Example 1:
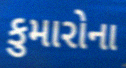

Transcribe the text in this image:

કુમારોના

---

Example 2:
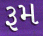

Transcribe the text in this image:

રૂમ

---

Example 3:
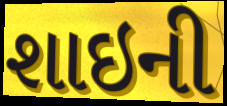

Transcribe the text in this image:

શાઇની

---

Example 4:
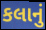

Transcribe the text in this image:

કલાનું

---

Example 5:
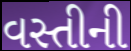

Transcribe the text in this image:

વસ્તીની